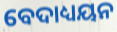
ବେଦାଧ୍ୟୟନ